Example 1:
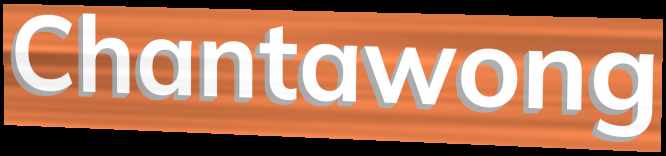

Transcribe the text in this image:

Chantawong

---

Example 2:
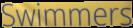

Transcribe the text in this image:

Swimmers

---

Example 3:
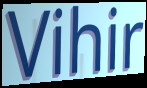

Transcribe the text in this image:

Vihir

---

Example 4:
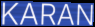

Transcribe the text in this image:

KARAN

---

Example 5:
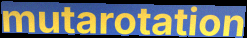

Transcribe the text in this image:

mutarotation